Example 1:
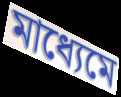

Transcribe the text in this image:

মাধ্যেমে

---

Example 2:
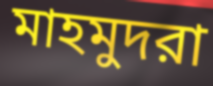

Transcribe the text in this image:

মাহমুদরা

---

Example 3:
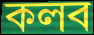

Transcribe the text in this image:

কলব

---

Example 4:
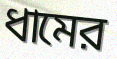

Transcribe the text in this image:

ধামের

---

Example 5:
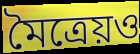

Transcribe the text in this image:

মৈত্রেয়ও